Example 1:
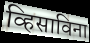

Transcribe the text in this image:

व्हिसाविना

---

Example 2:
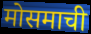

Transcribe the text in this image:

मोसमाची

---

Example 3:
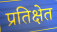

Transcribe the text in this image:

प्रतिक्षेत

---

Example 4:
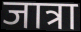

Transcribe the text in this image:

जात्रा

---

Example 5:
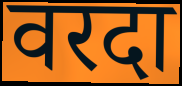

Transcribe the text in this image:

वरदा